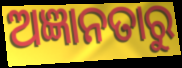
ଅଜ୍ଞାନତାରୁ